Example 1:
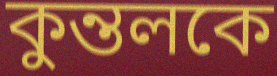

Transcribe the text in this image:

কুন্তলকে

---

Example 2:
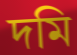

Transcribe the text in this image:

দমি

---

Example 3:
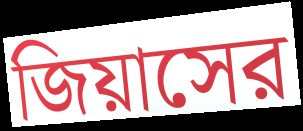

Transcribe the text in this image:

জিয়াসের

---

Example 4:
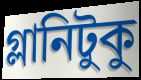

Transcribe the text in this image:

গ্লানিটুকু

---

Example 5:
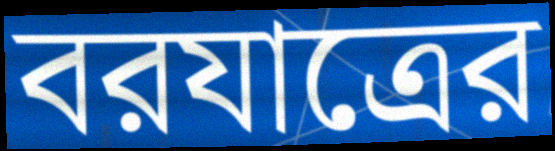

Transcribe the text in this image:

বরযাত্রের